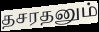
தசரதனும்